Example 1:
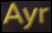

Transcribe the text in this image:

Ayr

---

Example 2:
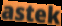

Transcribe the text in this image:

astek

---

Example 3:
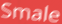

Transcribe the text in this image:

Smale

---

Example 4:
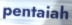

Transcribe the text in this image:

pentaiah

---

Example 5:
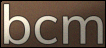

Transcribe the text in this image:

bcm